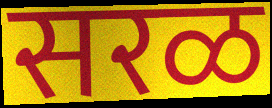
सरळ